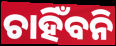
ଚାହିଁବନି